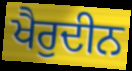
ਖੈਰੁਦੀਨ